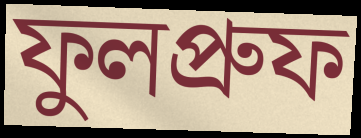
ফুলপ্রুফ